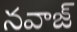
నవాజ్